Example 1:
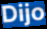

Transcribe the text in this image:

Dijo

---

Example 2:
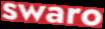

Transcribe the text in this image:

swaro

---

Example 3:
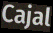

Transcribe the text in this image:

Cajal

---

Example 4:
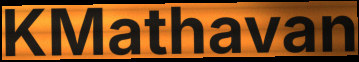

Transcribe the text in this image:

KMathavan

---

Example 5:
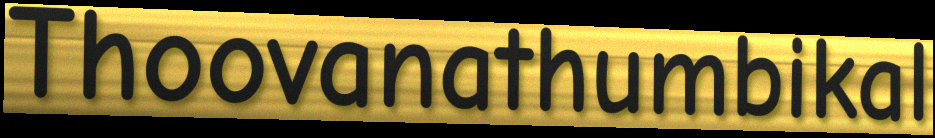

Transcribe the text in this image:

Thoovanathumbikal